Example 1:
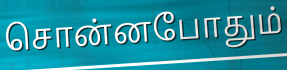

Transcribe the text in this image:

சொன்னபோதும்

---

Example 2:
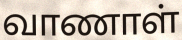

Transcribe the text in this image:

வாணாள்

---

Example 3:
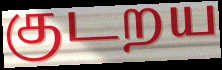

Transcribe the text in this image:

குடறய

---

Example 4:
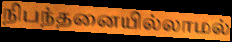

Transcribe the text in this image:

நிபந்தனையில்லாமல்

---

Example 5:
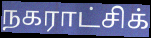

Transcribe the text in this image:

நகராட்சிக்